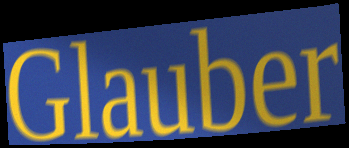
Glauber